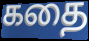
கதை